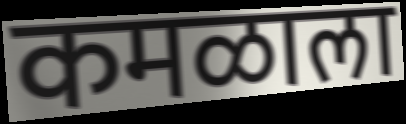
कमळाला